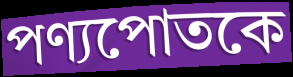
পণ্যপোতকে